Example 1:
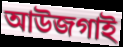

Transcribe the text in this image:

আউজগাই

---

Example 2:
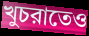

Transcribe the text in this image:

খুচরাতেও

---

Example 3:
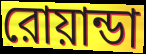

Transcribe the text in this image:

রোয়ান্ডা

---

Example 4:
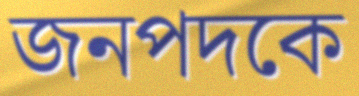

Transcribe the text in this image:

জনপদকে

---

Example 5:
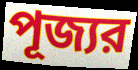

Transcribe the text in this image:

পূজ্যর